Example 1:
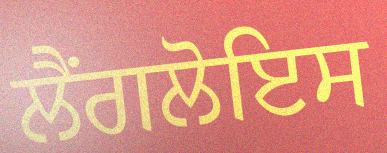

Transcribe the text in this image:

ਲੈਂਗਲੋਇਸ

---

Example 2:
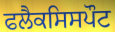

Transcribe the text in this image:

ਫਲੈਕਸਿਸਪੌਟ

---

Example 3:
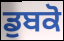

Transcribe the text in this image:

ਡੁਬਕੋ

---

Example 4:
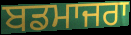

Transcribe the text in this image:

ਬਡਮਾਜਰਾ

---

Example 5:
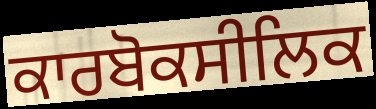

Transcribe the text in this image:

ਕਾਰਬੋਕਸੀਲਿਕ